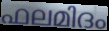
ഫലമിദം